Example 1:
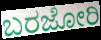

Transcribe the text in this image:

ಬರಜೋರಿ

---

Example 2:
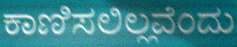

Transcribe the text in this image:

ಕಾಣಿಸಲಿಲ್ಲವೆಂದು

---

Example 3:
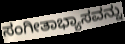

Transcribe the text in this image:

ಸಂಗೀತಾಭ್ಯಾಸವನ್ನು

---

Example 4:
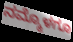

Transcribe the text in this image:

ನಮ್ಮೊಳಗೂ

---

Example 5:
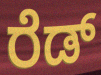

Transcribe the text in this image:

ರೆಡ್